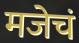
मजेचं